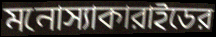
মনোস্যাকারাইডের